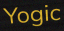
Yogic